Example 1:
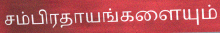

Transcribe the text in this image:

சம்பிரதாயங்களையும்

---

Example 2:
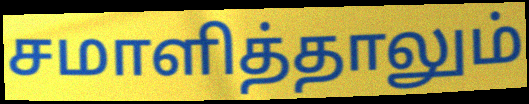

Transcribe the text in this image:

சமாளித்தாலும்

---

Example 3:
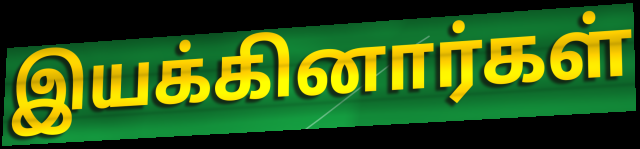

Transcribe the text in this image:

இயக்கினார்கள்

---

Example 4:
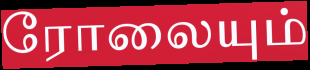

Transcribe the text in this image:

ரோலையும்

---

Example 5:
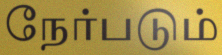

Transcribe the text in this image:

நேர்படும்